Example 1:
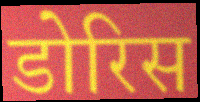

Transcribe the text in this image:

डोरिस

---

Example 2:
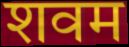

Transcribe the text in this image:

शवम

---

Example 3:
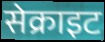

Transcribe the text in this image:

सेक्राइट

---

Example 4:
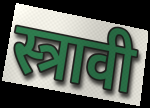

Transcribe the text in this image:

स्त्रावी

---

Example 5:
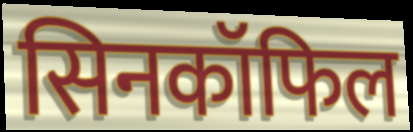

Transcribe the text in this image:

सिनकॉफिल